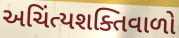
અચિંત્યશક્તિવાળો